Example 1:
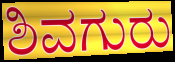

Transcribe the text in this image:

ಶಿವಗುರು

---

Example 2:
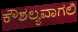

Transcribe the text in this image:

ಕೌಶಲ್ಯವಾಗಲಿ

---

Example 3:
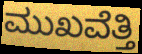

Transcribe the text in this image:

ಮುಖವೆತ್ತಿ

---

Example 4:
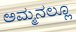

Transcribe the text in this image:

ಅಮ್ಮನಲ್ಲೂ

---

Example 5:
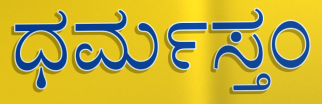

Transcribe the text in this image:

ಧರ್ಮಸ್ತಂ